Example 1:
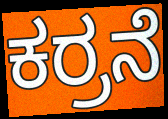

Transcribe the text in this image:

ಕರ್ರನೆ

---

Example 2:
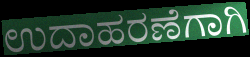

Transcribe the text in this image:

ಉದಾಹರಣೆಗಾಗಿ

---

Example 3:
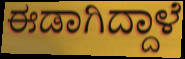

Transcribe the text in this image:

ಈಡಾಗಿದ್ದಾಳೆ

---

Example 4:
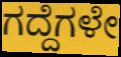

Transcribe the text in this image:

ಗದ್ದೆಗಳೇ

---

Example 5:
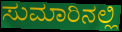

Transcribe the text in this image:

ಸುಮಾರಿನಲ್ಲಿ